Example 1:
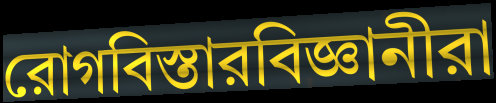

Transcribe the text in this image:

রোগবিস্তারবিজ্ঞানীরা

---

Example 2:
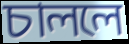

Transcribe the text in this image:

চাললে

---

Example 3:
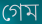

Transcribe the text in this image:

গেম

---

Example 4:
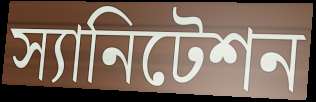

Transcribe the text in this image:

স্যানিটেশন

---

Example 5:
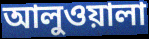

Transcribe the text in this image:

আলুওয়ালা